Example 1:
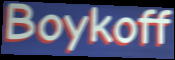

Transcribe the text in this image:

Boykoff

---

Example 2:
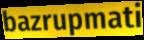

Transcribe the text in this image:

bazrupmati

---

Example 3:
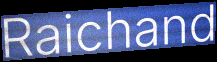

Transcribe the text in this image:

Raichand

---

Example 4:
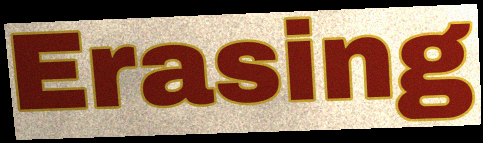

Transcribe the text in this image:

Erasing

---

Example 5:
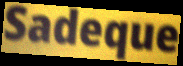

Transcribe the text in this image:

Sadeque